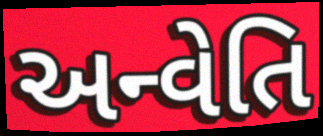
અન્વેતિ